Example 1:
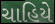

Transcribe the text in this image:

ચાહિયે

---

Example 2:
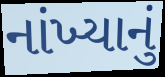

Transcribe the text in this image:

નાંખ્યાનું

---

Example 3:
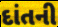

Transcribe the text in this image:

દાંતની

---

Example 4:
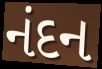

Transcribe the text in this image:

નંદન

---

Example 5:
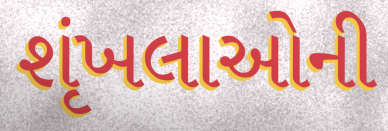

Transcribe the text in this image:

શૃંખલાઓની